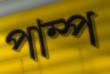
পাম্প